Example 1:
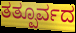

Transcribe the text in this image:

ತತ್ಪೂರ್ವದ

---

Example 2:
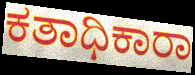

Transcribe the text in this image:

ಕತಾಧಿಕಾರಾ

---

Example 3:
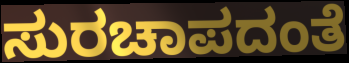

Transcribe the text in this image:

ಸುರಚಾಪದಂತೆ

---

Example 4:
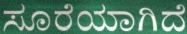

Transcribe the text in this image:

ಸೂರೆಯಾಗಿದೆ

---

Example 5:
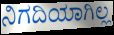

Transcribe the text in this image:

ನಿಗದಿಯಾಗಿಲ್ಲ